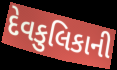
દેવકુલિકાની